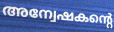
അന്വേഷകന്റെ